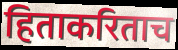
हिताकरिताच